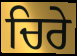
ਚਿਰੇ